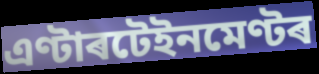
এণ্টাৰটেইনমেণ্টৰ